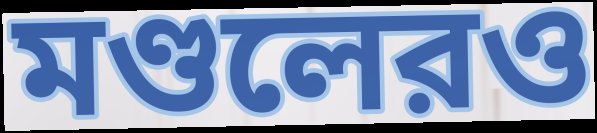
মণ্ডলেরও